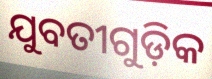
ଯୁବତୀଗୁଡ଼ିକ